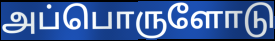
அப்பொருளோடு